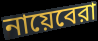
নায়েবেরা